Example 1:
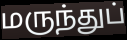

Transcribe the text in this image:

மருந்துப்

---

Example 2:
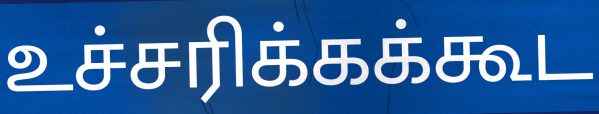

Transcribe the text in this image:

உச்சரிக்கக்கூட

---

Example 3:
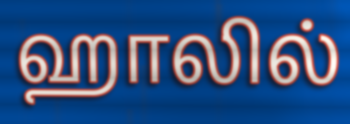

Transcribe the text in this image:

ஹாலில்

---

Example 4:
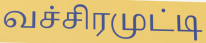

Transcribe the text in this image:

வச்சிரமுட்டி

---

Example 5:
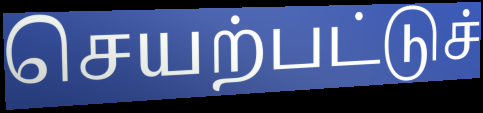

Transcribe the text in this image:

செயற்பட்டுச்